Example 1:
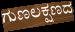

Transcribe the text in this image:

ಗುಣಲಕ್ಷಣದ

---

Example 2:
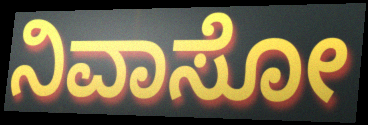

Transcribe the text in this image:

ನಿವಾಸೋ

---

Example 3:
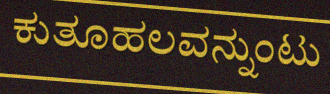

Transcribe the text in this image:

ಕುತೂಹಲವನ್ನುಂಟು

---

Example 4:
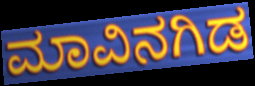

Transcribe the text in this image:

ಮಾವಿನಗಿಡ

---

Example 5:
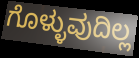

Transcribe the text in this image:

ಗೊಳ್ಳುವುದಿಲ್ಲ